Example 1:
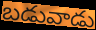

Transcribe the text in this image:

బడువాడు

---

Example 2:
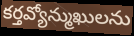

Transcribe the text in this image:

కర్తవ్యోన్ముఖులను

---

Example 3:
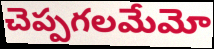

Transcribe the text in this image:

చెప్పగలమేమో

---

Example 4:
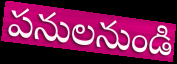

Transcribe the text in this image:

పనులనుండి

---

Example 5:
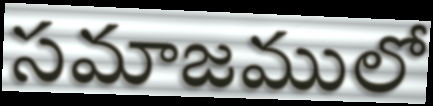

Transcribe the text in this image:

సమాజములో